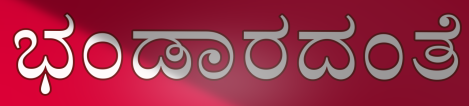
ಭಂಡಾರದಂತೆ